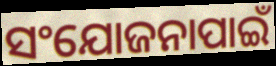
ସଂଯୋଜନାପାଇଁ